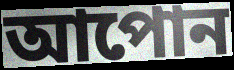
আপোন